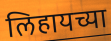
लिहायच्या